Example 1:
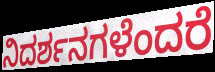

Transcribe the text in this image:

ನಿದರ್ಶನಗಳೆಂದರೆ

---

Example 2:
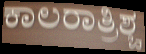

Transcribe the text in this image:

ಕಾಲರಾತ್ರಿಶ್ಚ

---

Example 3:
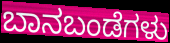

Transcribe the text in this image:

ಬಾನಬಂಡೆಗಳು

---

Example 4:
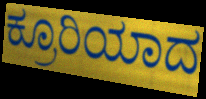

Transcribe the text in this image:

ಕ್ರೂರಿಯಾದ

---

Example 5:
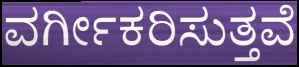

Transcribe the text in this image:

ವರ್ಗೀಕರಿಸುತ್ತವೆ